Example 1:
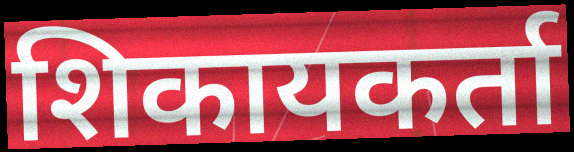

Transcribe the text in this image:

शिकायकर्ता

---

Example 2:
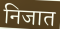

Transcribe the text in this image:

निजात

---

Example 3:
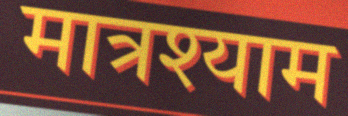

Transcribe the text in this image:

मात्रश्याम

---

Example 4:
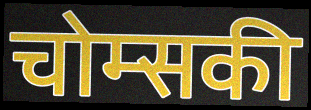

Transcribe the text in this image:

चोम्सकी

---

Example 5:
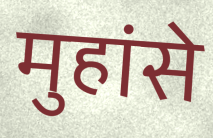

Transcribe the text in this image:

मुहांसे